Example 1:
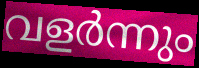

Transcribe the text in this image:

വളർന്നും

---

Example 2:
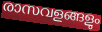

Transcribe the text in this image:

രാസവളങ്ങളും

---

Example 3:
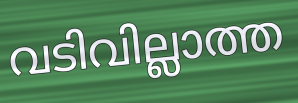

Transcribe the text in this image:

വടിവില്ലാത്ത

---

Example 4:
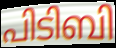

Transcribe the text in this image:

പിടിബി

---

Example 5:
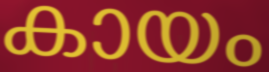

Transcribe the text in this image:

കായം